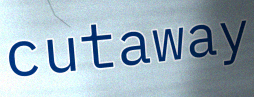
cutaway